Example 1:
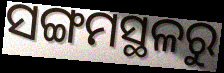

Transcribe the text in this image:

ସଙ୍ଗମସ୍ଥଳରୁ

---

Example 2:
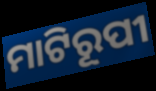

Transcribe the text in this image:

ମାଟିରୂପୀ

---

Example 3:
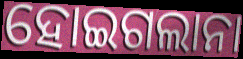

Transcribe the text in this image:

ହୋଇଗଲାନା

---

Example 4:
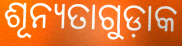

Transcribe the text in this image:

ଶୂନ୍ୟତାଗୁଡ଼ାକ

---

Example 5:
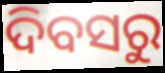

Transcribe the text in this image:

ଦିବସରୁ